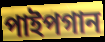
পাইপগান